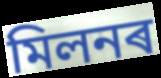
মিলনৰ